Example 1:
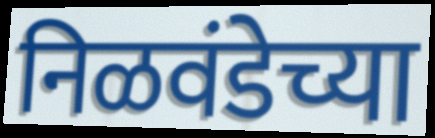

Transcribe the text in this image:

निळवंडेच्या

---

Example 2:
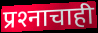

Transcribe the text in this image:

प्रश्नाचाही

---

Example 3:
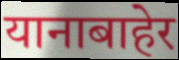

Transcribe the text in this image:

यानाबाहेर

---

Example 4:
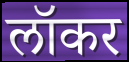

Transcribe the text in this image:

लॉकर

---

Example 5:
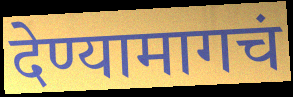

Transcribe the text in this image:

देण्यामागचं